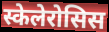
स्केलेरोसिस